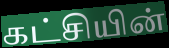
கட்சியின்